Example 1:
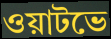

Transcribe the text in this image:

ওয়াটভে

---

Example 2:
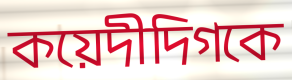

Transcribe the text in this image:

কয়েদীদিগকে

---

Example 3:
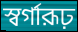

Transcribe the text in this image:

স্বর্গারূঢ়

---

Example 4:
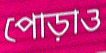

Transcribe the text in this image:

পোড়াও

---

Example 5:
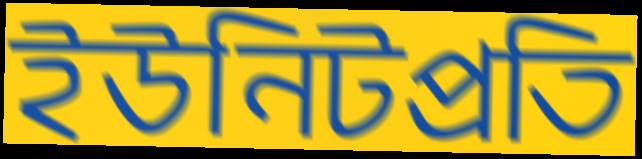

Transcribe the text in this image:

ইউনিটপ্রতি